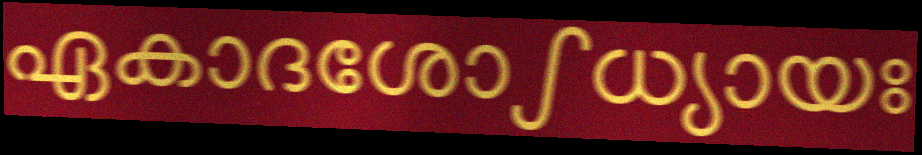
ഏകാദശോഽധ്യായഃ